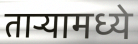
ताऱ्यामध्ये